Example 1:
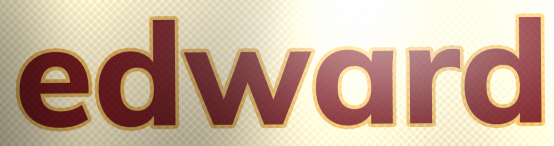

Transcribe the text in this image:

edward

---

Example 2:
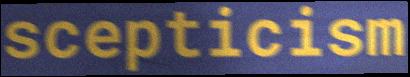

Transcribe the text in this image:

scepticism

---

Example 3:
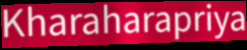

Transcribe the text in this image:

Kharaharapriya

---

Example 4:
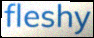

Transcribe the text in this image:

fleshy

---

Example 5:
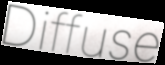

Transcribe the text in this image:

Diffuse